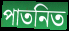
পাতনিত